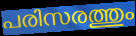
പരിസരത്തും